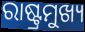
ରାଷ୍ଟ୍ରମୁଖ୍ୟ